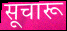
सूचारू